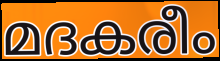
മദകരീം